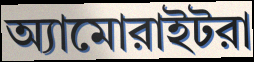
অ্যামোরাইটরা